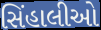
સિંહાલીઓ